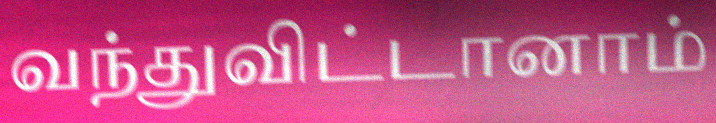
வந்துவிட்டானாம்